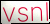
vsnl